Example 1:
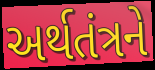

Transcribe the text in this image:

અર્થતંત્રને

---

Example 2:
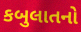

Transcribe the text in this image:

કબુલાતનો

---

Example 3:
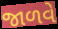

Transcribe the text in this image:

જાળવે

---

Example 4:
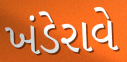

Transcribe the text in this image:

ખંડેરાવે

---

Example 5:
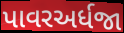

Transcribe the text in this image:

પાવરઅર્ધજા